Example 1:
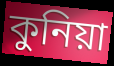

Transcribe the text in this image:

কুনিয়া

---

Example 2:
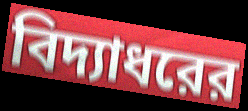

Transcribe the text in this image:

বিদ্যাধরের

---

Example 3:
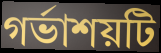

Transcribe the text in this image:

গর্ভাশয়টি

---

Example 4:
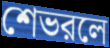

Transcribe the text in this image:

শেভরলে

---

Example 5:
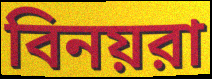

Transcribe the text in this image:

বিনয়রা